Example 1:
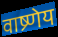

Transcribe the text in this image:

वाष्र्णेय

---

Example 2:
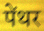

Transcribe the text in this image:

पेंथर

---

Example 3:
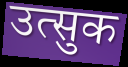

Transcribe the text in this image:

उत्सुक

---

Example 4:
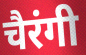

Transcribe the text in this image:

चैरंगी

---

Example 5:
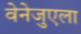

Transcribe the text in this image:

वेनेजुएला